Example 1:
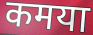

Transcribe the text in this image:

कमया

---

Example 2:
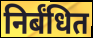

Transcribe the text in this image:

निर्बंधित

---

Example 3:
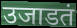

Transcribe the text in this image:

उजाडतं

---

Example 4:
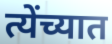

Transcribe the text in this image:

त्येंच्यात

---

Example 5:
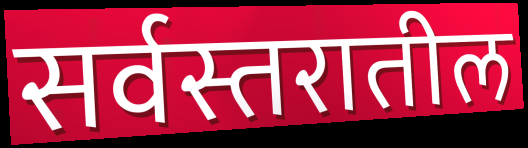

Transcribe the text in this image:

सर्वस्तरातील